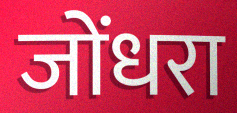
जोंधरा